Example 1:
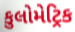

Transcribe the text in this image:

કુલોમેટ્રિક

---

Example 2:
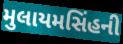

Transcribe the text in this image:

મુલાયમસિંહની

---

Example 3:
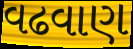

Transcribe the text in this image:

વઢવાણ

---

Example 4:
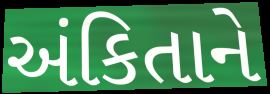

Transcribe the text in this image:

અંકિતાને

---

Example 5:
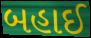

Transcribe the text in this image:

બહાઈ